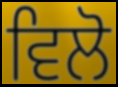
ਵਿਲੋ